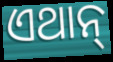
ଏଥାନ୍